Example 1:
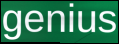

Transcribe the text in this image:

genius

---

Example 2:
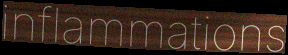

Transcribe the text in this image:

inflammations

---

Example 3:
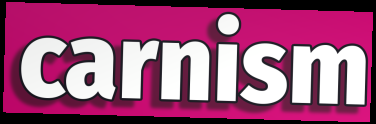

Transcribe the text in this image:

carnism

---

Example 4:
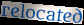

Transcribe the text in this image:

relocated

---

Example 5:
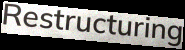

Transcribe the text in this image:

Restructuring